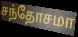
சந்தோசமா